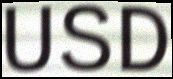
USD